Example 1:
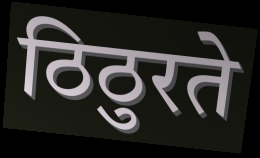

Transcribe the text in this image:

ठिठुरते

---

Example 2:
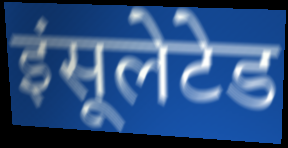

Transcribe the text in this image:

इंसूलेटेड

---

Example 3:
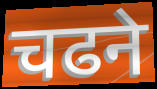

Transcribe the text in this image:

चढने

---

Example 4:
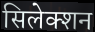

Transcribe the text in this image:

सिलेक्शन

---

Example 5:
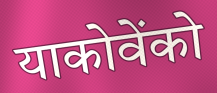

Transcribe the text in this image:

याकोवेंको